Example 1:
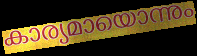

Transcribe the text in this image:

കാര്യമായൊന്നും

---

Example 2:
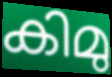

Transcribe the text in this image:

കിമു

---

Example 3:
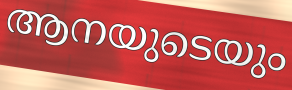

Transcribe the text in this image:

ആനയുടെയും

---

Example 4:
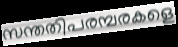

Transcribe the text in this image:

സന്തതിപരമ്പരകളെ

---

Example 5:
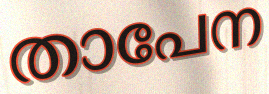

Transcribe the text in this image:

താപേന